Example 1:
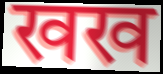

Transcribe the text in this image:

खख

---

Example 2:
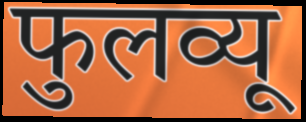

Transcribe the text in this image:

फुलव्यू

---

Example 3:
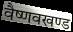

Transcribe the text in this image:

वैष्णवखण्ड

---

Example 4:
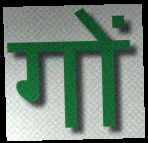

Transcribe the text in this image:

गों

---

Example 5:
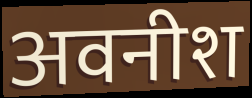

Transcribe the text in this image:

अवनीश